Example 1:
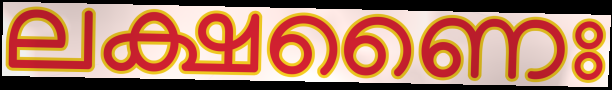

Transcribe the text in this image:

ലക്ഷണൈഃ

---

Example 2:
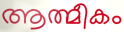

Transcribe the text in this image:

ആത്മീകം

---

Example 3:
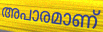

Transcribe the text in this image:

അപാരമാണ്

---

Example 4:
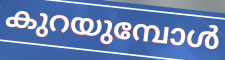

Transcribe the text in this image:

കുറയുമ്പോൾ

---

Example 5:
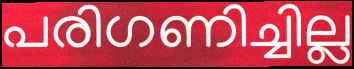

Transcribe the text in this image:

പരിഗണിച്ചില്ല